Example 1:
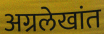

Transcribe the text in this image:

अग्रलेखांत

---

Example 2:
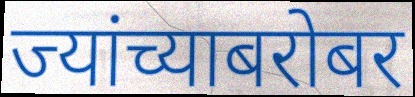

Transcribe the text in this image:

ज्यांच्याबरोबर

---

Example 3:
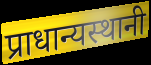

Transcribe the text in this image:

प्राधान्यस्थानी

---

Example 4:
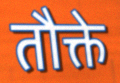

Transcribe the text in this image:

तौक्ते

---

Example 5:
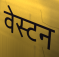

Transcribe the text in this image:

वेस्टन